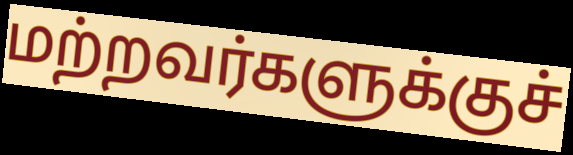
மற்றவர்களுக்குச்